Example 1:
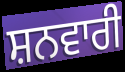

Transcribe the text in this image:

ਸ਼ਨਵਾਰੀ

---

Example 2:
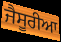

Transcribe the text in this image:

ਜੈਸੂਰੀਆ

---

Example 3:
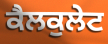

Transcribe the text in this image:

ਕੈਲਕੁਲੇਟ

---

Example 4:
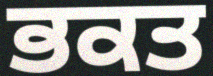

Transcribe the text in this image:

ਭਕਤ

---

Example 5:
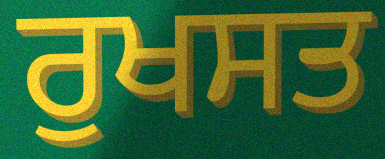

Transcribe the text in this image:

ਰੁਖਸਤ